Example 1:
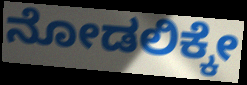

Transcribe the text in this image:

ನೋಡಲಿಕ್ಕೇ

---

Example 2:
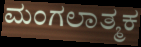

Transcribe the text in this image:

ಮಂಗಲಾತ್ಮಕ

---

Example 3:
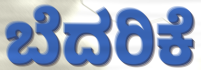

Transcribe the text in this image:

ಬೆದರಿಕೆ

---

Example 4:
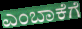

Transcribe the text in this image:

ಎಂಬಾಕೆಗೆ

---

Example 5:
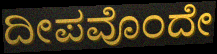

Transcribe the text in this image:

ದೀಪವೊಂದೇ